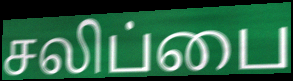
சலிப்பை